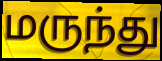
மருந்து